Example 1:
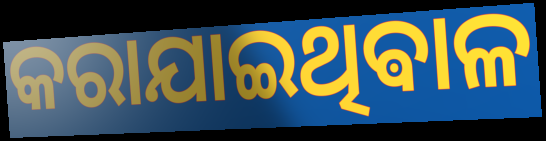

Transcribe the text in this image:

କରାଯାଇଥିଵାଳ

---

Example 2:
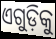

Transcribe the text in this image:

ଏଗୁଡ଼ିକୁ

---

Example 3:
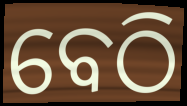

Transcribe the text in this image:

ବେଠି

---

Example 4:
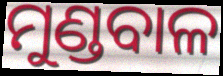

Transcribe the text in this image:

ମୁଣ୍ଡବାଳ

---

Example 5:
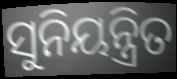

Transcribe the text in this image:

ସୁନିୟନ୍ତ୍ରିତ